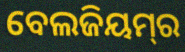
ବେଲଜିୟମ୍‌ର